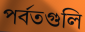
পর্বতগুলি